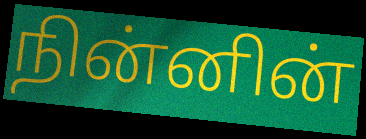
நின்னின்